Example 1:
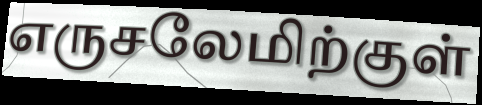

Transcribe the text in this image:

எருசலேமிற்குள்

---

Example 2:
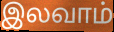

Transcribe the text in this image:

இலவாம்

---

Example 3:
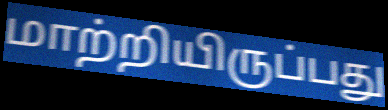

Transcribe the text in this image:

மாற்றியிருப்பது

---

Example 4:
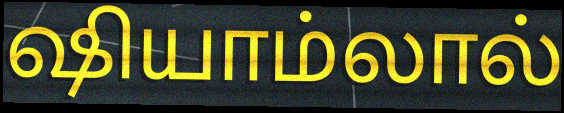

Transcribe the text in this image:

ஷியாம்லால்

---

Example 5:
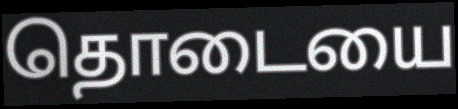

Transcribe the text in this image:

தொடையை